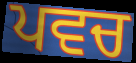
ਪਵਚ